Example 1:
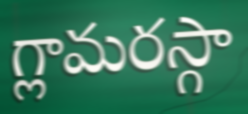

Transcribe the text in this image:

గ్లామరస్గా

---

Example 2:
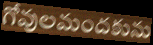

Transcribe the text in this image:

గోవులమందకును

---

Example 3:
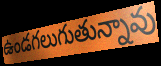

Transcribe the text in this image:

ఉండగలుగుతున్నావు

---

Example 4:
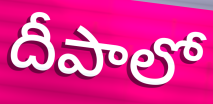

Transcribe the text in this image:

దీపాలో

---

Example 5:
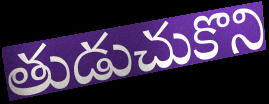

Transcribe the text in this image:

తుడుచుకొని